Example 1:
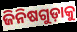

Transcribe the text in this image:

ଜିନିଷଗୁଡ଼ାକୁ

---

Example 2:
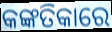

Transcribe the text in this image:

କଙ୍କତିକାରେ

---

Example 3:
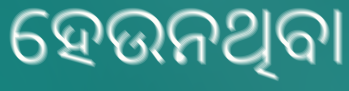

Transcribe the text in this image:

ହେଉନଥିବା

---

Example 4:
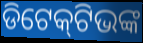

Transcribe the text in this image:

ଡିଟେକ୍‌ଟିଭଙ୍କ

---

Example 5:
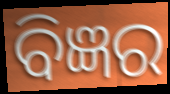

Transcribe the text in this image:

ବିଜ୍ଞର